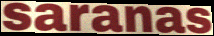
saranas